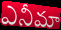
ఎనీమా